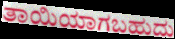
ತಾಯಿಯಾಗಬಹುದು